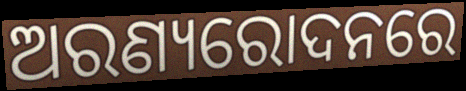
ଅରଣ୍ୟରୋଦନରେ